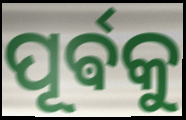
ପୂର୍ଵକୁ